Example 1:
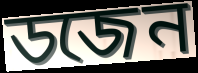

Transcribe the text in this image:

ডজেন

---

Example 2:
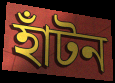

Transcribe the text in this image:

হাঁটন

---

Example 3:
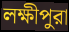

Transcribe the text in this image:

লক্ষীপুরা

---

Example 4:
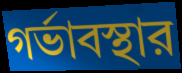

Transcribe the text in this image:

গর্ভাবস্থার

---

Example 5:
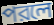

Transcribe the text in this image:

পরলে